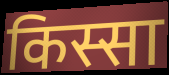
किस्सा